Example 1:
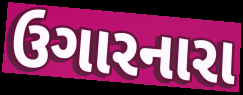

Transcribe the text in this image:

ઉગારનારા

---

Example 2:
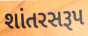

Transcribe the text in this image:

શાંતરસરૂપ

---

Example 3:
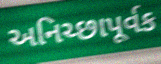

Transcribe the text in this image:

અનિચ્છાપૂર્વક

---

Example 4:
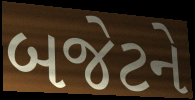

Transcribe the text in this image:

બજેટને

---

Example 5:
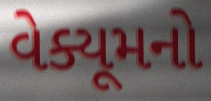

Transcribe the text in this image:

વેક્યૂમનો